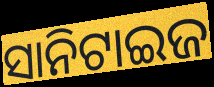
ସାନିଟାଇଜ